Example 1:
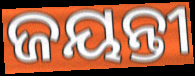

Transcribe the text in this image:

ଜୟନ୍ତୀ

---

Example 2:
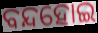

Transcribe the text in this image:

ବନ୍ଦହୋଇ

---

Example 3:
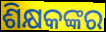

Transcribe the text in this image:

ଶିକ୍ଷକଙ୍କର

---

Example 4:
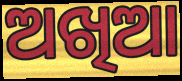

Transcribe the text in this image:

ଅଖିଆ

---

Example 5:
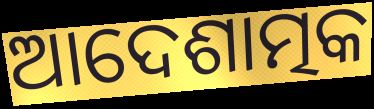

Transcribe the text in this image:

ଆଦେଶାତ୍ମକ